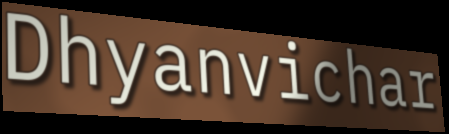
Dhyanvichar